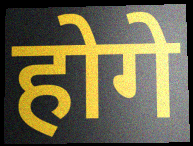
होगे